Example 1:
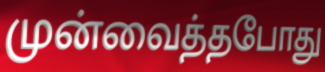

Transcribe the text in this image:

முன்வைத்தபோது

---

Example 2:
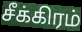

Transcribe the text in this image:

சீக்கிரம்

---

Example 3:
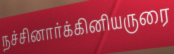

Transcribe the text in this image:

நச்சினார்க்கினியருரை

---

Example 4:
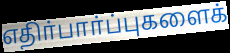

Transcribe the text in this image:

எதிர்பார்ப்புகளைக்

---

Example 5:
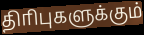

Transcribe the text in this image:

திரிபுகளுக்கும்